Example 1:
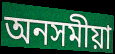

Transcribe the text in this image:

অনসমীয়া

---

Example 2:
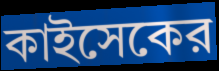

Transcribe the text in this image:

কাইসেকের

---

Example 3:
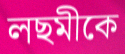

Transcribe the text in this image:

লছমীকে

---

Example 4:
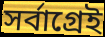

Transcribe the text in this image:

সর্বাগ্রেই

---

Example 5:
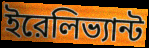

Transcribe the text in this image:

ইরেলিভ্যান্ট